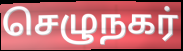
செழுநகர்